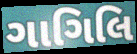
ગાગિલિ